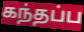
கந்தப்ப